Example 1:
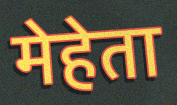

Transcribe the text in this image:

मेहेता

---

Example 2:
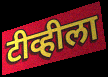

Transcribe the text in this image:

टीव्हीला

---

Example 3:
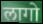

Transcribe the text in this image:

लागो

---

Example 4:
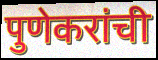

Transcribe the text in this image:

पुणेकरांची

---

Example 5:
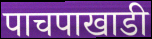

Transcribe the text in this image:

पाचपाखाडी